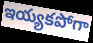
ఇయ్యకపోగా